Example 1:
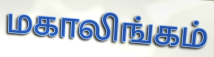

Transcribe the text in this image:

மகாலிங்கம்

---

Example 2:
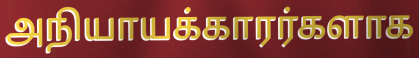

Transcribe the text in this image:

அநியாயக்காரர்களாக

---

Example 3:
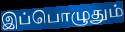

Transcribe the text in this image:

இப்பொழுதும்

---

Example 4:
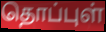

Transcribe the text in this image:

தொப்புள்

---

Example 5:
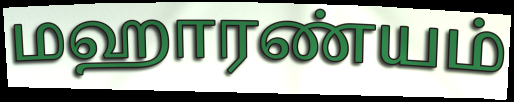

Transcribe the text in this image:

மஹாரண்யம்